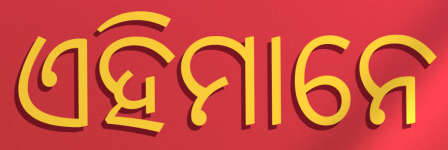
ଏହିମାନେ